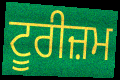
ਟੂਰੀਜ਼ਮ